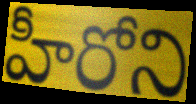
హీరోని